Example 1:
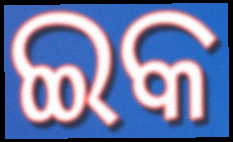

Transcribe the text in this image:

ଇକ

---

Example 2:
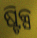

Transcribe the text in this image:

ଷ୍ଟିକ୍ସ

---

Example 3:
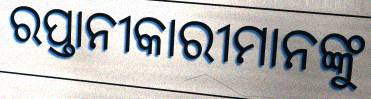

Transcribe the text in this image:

ରପ୍ତାନୀକାରୀମାନଙ୍କୁ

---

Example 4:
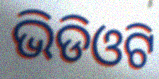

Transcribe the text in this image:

ଭିଡିଓଟି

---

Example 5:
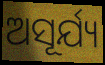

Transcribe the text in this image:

ଅସୂର୍ଯ୍ୟ